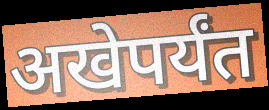
अखेपर्यंत